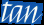
tan